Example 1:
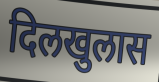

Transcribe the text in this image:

दिलखुलास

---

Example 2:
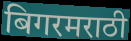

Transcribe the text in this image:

बिगरमराठी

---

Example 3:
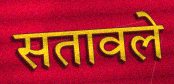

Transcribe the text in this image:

सतावले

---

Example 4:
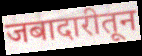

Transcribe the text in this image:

जबादारीतून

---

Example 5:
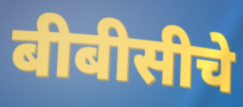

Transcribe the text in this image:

बीबीसीचे